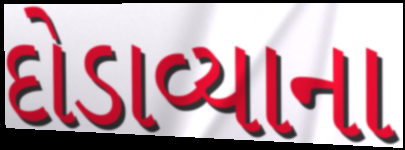
દોડાવ્યાના